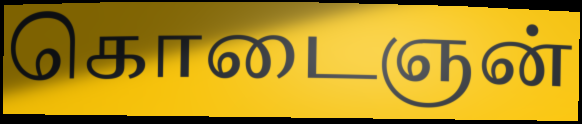
கொடைஞன்